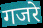
गजरे